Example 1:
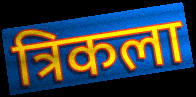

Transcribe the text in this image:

त्रिकला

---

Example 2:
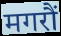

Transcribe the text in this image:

मगरौं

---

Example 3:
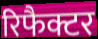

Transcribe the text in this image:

रिफैक्टर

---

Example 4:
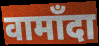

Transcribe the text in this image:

वामाँदा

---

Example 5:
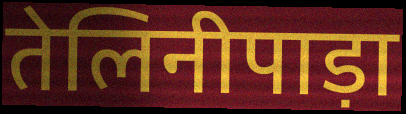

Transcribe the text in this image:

तेलिनीपाड़ा